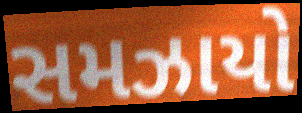
સમઝાયો